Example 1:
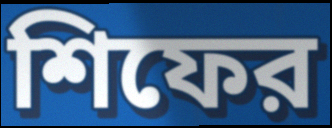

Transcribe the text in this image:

শিফের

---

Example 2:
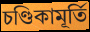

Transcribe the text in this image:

চণ্ডিকামূর্তি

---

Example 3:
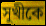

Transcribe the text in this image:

সুখীকে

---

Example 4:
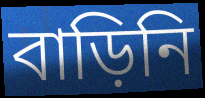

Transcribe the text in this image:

বাড়িনি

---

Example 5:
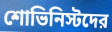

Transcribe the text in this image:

শোভিনিস্টদের